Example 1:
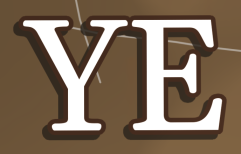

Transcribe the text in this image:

YE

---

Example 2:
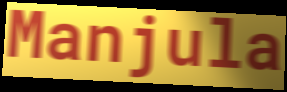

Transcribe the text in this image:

Manjula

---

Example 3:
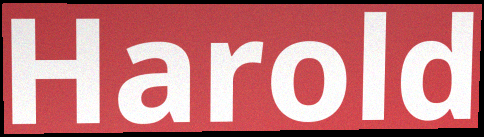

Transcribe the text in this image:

Harold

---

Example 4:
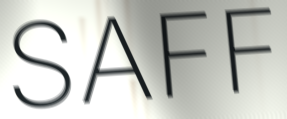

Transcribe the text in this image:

SAFF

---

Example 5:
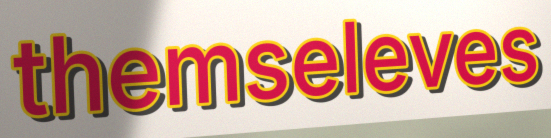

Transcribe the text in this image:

themseleves